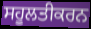
ਸਹੂਲਤੀਕਰਨ